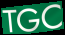
TGC